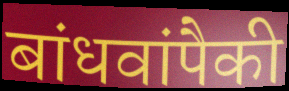
बांधवांपैकी